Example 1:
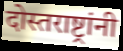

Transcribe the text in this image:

दोस्तराष्ट्रांनी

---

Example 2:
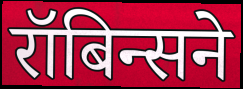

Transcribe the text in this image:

रॉबिन्सने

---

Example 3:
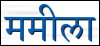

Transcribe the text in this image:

ममीला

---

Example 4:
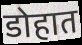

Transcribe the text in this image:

डोहात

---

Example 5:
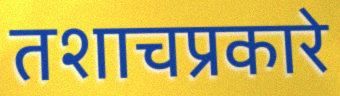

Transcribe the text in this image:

तशाचप्रकारे